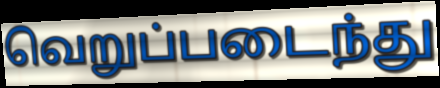
வெறுப்படைந்து